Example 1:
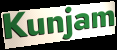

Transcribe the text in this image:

Kunjam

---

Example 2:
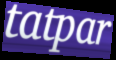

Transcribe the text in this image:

tatpar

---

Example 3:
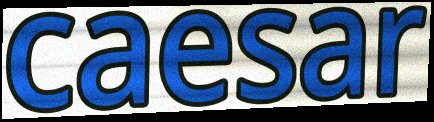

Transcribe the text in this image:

caesar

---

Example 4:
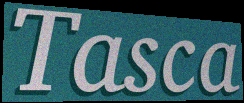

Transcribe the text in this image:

Tasca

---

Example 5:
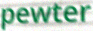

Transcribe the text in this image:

pewter